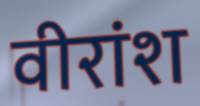
वीरांश